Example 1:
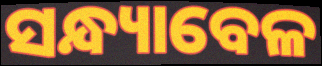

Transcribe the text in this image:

ସନ୍ଧ୍ୟାବେଳ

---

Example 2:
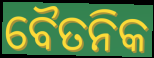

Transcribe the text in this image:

ବୈତନିକ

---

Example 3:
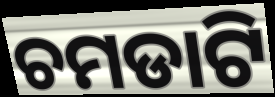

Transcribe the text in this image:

ଚମଡାଟି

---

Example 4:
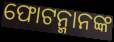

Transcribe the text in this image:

ଫୋଟନ୍ମାନଙ୍କ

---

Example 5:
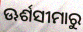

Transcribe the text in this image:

ଊର୍ଶସୀମାରୁ